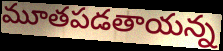
మూతపడతాయన్న